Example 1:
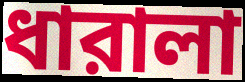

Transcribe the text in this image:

ধারালা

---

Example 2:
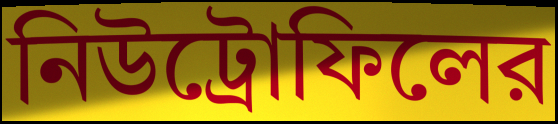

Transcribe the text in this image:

নিউট্রোফিলের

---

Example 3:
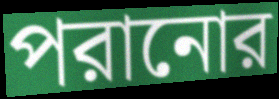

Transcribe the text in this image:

পরানোর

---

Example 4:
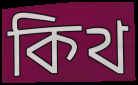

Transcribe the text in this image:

কিথ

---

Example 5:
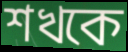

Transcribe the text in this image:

শখকে